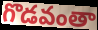
గొడవంతా